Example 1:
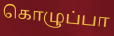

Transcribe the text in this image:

கொழுப்பா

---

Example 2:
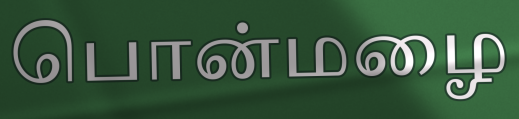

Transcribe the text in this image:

பொன்மழை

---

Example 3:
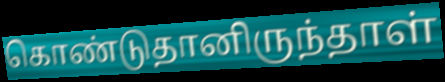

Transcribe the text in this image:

கொண்டுதானிருந்தாள்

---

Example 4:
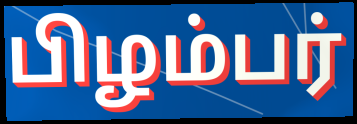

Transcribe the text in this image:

பிழம்பர்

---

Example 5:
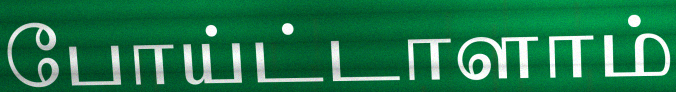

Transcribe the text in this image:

போய்ட்டாளாம்